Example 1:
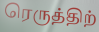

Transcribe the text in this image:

ரெருத்திற்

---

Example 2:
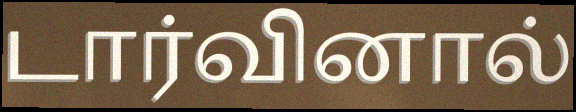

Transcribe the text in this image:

டார்வினால்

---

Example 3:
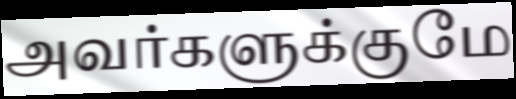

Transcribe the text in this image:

அவர்களுக்குமே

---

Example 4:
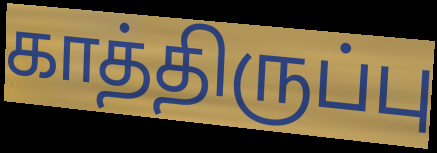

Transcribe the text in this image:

காத்திருப்பு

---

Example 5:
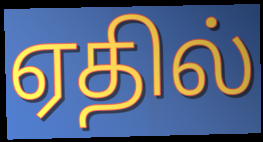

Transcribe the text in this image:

ஏதில்